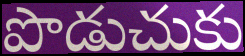
పొడుచుకు